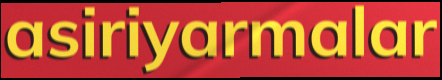
asiriyarmalar